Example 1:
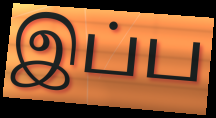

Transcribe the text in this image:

இப்ப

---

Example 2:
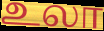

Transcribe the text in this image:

உலா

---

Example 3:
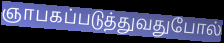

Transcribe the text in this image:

ஞாபகப்படுத்துவதுபோல்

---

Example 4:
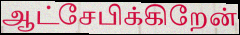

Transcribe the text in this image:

ஆட்சேபிக்கிறேன்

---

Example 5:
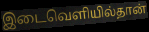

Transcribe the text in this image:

இடைவெளியில்தான்